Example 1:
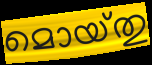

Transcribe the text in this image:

മൊയ്‌തു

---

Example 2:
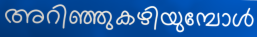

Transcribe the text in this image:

അറിഞ്ഞുകഴിയുമ്പോൾ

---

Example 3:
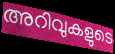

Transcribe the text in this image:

അറിവുകളുടെ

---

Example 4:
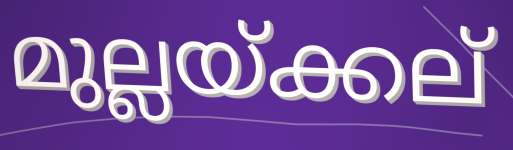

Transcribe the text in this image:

മുല്ലയ്ക്കല്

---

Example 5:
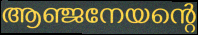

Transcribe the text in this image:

ആഞ്ജനേയന്റെ